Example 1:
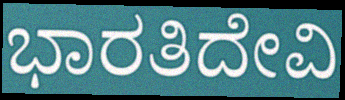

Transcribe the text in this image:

ಭಾರತಿದೇವಿ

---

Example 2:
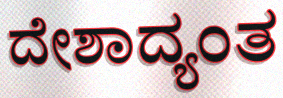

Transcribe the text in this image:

ದೇಶಾದ್ಯಂತ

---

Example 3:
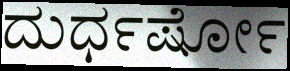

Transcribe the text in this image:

ದುರ್ಧರ್ಷೋ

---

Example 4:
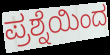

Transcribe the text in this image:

ಪ್ರಶ್ನೆಯಿಂದ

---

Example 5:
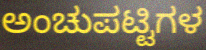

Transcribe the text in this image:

ಅಂಚುಪಟ್ಟಿಗಳ